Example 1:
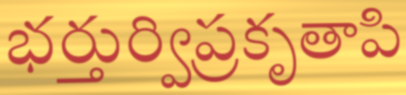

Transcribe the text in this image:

భర్తుర్విప్రకృతాపి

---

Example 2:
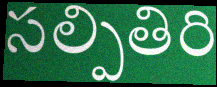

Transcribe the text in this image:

సల్పితిరి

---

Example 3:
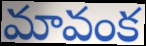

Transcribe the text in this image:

మావంక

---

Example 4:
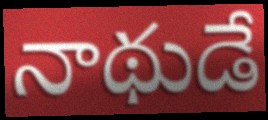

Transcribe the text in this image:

నాథుడే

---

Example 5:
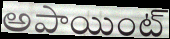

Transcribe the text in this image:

అపాయింట్